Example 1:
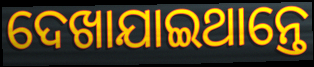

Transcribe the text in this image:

ଦେଖାଯାଇଥାନ୍ତେ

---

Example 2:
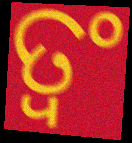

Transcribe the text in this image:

ତ୍ୱଂ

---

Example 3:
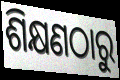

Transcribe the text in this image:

ଶିକ୍ଷଣଠାରୁ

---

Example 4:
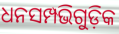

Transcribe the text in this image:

ଧନସମ୍ପଭିଗୁଡ଼ିକ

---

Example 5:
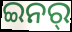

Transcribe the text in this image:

ଇନର୍